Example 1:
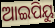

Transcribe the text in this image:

ଆଇପିୟୁ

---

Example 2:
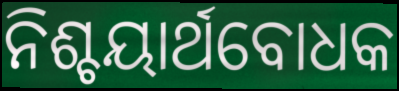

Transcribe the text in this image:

ନିଶ୍ଚୟାର୍ଥବୋଧକ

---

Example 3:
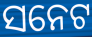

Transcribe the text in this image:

ସନେଟ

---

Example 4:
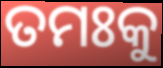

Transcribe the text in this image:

ତମଃକୁ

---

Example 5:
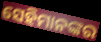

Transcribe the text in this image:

ସେହିମାନଙ୍କର